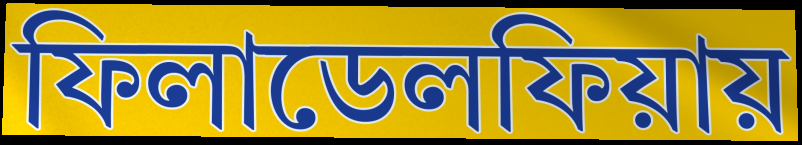
ফিলাডেলফিয়ায়